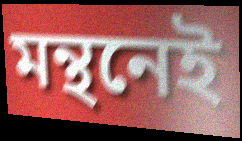
মন্থনেই